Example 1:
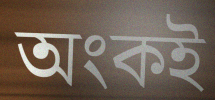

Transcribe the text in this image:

অংকই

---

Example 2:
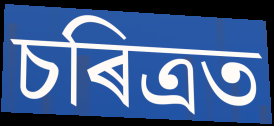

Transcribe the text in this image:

চৰিত্ৰত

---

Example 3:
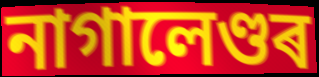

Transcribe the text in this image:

নাগালেণ্ডৰ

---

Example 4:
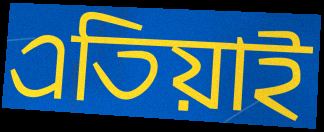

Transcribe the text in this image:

এতিয়াই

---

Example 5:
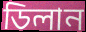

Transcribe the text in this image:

ডিলান